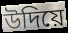
উদিয়ে